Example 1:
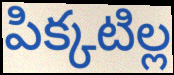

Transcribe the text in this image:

పిక్కటిల్ల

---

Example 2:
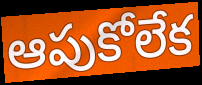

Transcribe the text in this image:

ఆపుకోలేక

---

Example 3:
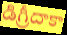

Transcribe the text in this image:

డిగ్రీదాకా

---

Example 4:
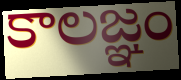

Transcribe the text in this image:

కాలజ్ఞం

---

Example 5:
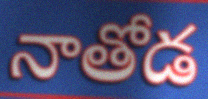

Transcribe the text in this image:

నాతోడ